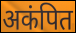
अकंपित